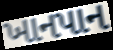
ખાનપાન